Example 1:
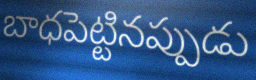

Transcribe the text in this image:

బాధపెట్టినప్పుడు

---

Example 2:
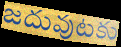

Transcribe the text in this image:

జదువుటకు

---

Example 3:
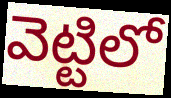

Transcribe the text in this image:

వెట్టిలో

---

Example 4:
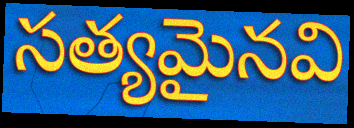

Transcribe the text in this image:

సత్యమైనవి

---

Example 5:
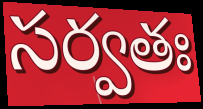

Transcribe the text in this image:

సర్వతః